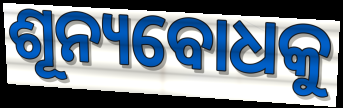
ଶୂନ୍ୟବୋଧକୁ